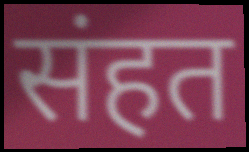
संहत